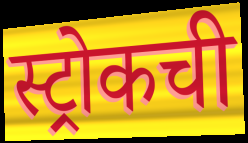
स्ट्रोकची